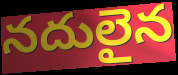
నదులైన